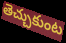
తెచ్చుకుంట